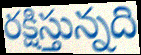
రక్షిస్తున్నది